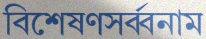
বিশেষণসৰ্ব্বনাম